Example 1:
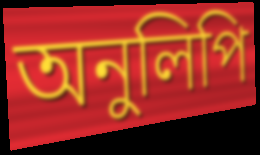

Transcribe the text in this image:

অনুলিপি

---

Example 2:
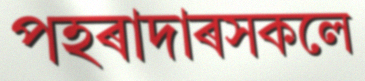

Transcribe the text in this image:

পহৰাদাৰসকলে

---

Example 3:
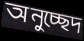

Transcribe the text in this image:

অনুচ্ছেদ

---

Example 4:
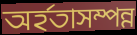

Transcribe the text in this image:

অৰ্হতাসম্পন্ন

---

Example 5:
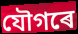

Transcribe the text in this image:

যৌগৰে